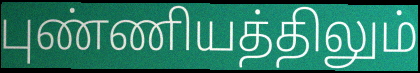
புண்ணியத்திலும்